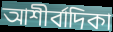
আশীর্বাদিকা